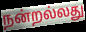
நன்றல்லது